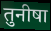
तुनीषा